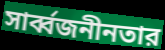
সার্ব্বজনীনতার